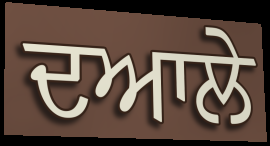
ਦਆਲੇ